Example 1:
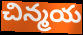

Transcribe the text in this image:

చిన్మయ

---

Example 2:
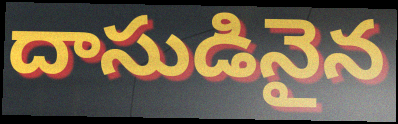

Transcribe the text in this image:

దాసుడినైన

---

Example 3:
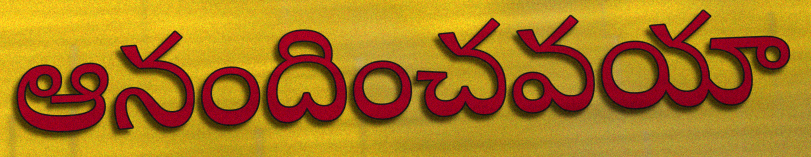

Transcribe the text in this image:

ఆనందించవయా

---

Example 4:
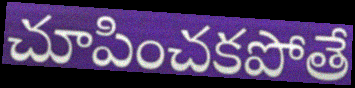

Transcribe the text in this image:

చూపించకపోతే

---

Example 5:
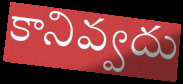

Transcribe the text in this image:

కానివ్వదు